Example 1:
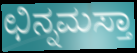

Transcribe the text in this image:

ಛಿನ್ನಮಸ್ತಾ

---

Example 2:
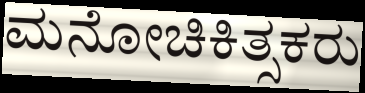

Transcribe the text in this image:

ಮನೋಚಿಕಿತ್ಸಕರು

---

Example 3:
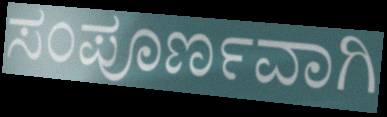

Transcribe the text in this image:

ಸಂಪೂರ್ಣವಾಗಿ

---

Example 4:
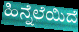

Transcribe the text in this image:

ಹಿನ್ನೆಲೆಯಿದೆ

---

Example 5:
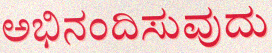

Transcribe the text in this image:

ಅಭಿನಂದಿಸುವುದು